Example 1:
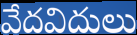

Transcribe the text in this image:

వేదవిదులు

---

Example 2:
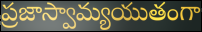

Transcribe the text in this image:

ప్రజాస్వామ్యయుతంగా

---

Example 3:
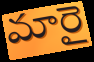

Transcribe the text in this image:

మారై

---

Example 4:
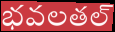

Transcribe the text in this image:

భవలతల్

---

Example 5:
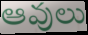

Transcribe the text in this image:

ఆవులు